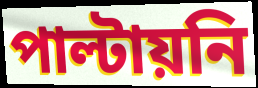
পাল্টায়নি